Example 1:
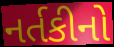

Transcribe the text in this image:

નર્તકીનો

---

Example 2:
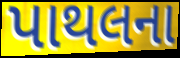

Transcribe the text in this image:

પાથલના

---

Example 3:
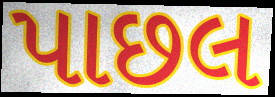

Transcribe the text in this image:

પાછલ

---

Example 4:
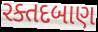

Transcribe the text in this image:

રક્તદબાણ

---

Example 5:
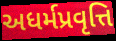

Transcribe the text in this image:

અધર્મપ્રવૃત્તિ